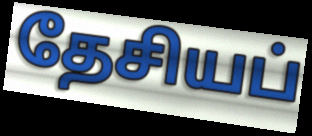
தேசியப்